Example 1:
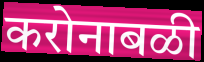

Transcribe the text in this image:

करोनाबळी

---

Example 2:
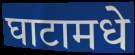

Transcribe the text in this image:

घाटामधे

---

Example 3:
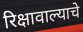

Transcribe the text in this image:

रिक्षावाल्याचे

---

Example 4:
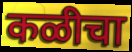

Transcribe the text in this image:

कळीचा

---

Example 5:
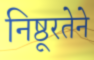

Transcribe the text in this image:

निष्ठूरतेने